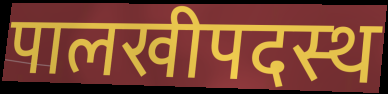
पालखीपदस्थ